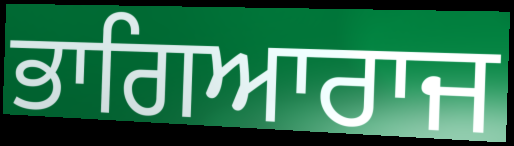
ਭਾਗਿਆਰਾਜ